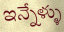
ఇన్నేళ్ళు